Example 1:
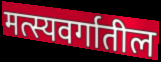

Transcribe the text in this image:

मत्स्यवर्गातील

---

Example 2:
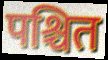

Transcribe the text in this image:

पश्चित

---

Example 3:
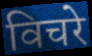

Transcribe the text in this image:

विचरे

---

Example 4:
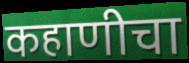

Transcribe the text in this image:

कहाणीचा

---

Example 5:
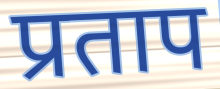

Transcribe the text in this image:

प्रताप